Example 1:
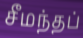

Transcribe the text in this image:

சீமந்தப்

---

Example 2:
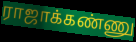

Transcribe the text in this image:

ராஜாக்கண்ணு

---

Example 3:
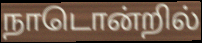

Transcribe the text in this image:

நாடொன்றில்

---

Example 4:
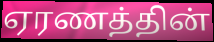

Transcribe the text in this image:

ஏரணத்தின்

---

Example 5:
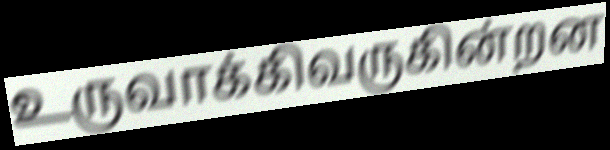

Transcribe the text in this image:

உருவாக்கிவருகின்றன